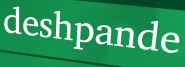
deshpande